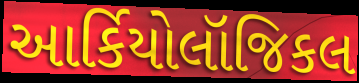
આર્કિયોલૉજિકલ